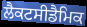
ਲੈਕਟਸੀਡੈਮਿਕ